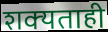
शक्‍यताही